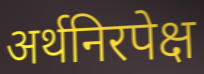
अर्थनिरपेक्ष